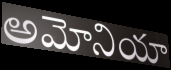
అమోనియా